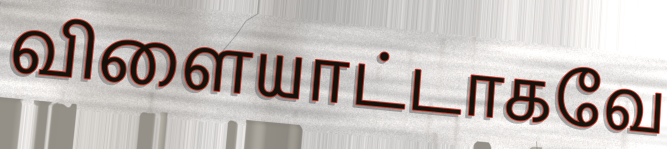
விளையாட்டாகவே